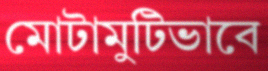
মোটামুটিভাবে